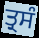
ਤ੍ਰਸੰ